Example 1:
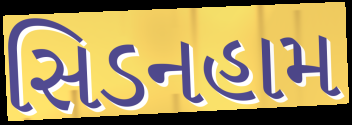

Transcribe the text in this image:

સિડનહામ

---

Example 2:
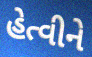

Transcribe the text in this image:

હેત્વીને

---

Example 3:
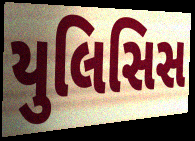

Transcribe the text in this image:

યુલિસિસ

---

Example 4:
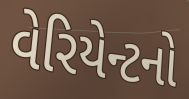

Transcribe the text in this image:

વેરિયેન્ટનો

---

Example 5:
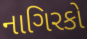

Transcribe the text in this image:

નાગિરકો